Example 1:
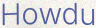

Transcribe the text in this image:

Howdu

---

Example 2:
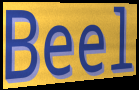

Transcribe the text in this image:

Beel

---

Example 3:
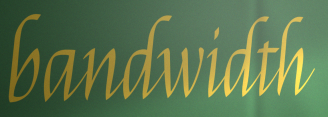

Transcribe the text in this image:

bandwidth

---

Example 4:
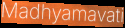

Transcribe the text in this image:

Madhyamavati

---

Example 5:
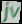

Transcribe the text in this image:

jv